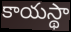
కాయస్థా